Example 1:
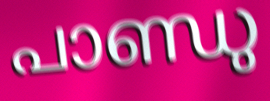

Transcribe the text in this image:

പാണ്ഡു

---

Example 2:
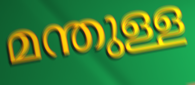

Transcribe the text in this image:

മന്തുള്ള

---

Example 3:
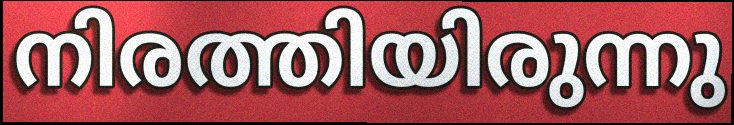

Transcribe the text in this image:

നിരത്തിയിരുന്നു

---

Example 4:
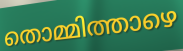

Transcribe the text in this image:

തൊമ്മിത്താഴെ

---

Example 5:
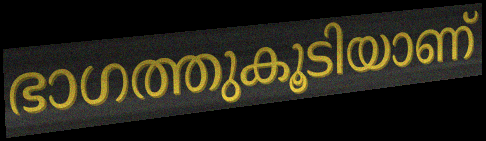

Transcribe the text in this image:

ഭാഗത്തുകൂടിയാണ്